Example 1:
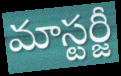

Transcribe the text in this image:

మాస్టర్జీ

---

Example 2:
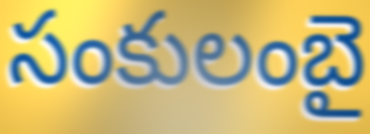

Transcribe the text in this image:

సంకులంబై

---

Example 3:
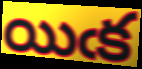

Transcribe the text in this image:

యిఁక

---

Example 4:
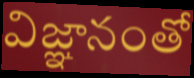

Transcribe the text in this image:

విజ్ఞానంతో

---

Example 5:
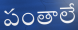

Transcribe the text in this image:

పంతాలే